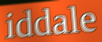
iddale